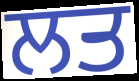
ਲਤ